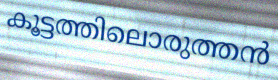
കൂട്ടത്തിലൊരുത്തൻ